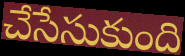
చేసేసుకుంది